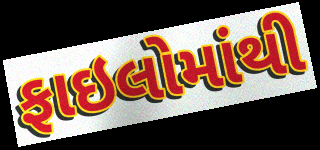
ફાઇલોમાંથી